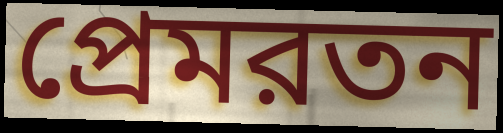
প্রেমরতন